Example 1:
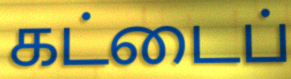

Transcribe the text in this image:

கட்டைப்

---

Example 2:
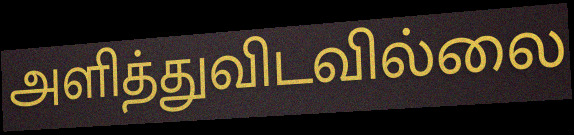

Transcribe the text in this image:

அளித்துவிடவில்லை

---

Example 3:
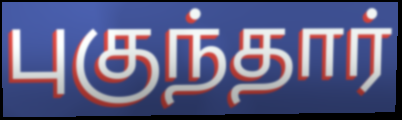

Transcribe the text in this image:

புகுந்தார்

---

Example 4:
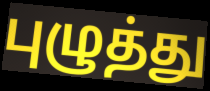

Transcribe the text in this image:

புழுத்து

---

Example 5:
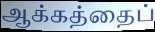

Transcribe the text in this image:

ஆக்கத்தைப்